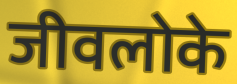
जीवलोके